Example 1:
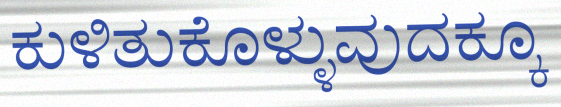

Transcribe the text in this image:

ಕುಳಿತುಕೊಳ್ಳುವುದಕ್ಕೂ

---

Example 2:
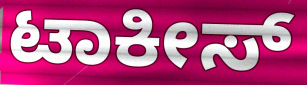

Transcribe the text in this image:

ಟಾಕೀಸ್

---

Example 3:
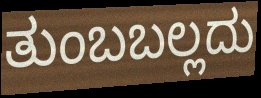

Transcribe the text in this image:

ತುಂಬಬಲ್ಲದು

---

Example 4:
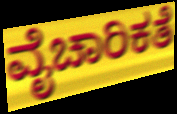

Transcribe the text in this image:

ವೈಚಾರಿಕತೆ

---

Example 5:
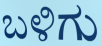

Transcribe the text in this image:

ಬಳಿಗು